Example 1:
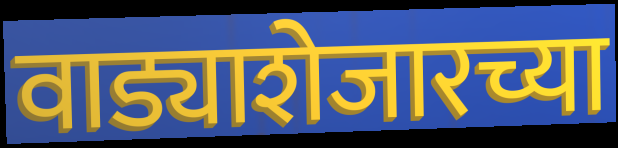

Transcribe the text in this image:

वाड्याशेजारच्या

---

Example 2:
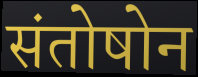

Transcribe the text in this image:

संतोषोन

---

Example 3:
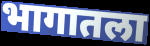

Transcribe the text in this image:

भागातला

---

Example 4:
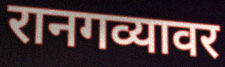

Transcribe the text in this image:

रानगव्यावर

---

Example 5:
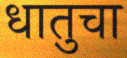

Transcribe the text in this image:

धातुचा